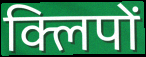
क्लिपों